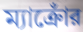
ম্যাক্রোঁর